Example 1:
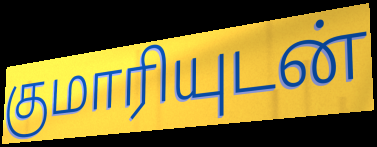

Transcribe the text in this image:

குமாரியுடன்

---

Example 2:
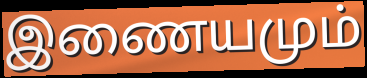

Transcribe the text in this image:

இணையமும்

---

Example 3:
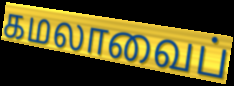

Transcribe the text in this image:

கமலாவைப்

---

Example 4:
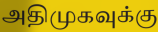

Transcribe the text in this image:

அதிமுகவுக்கு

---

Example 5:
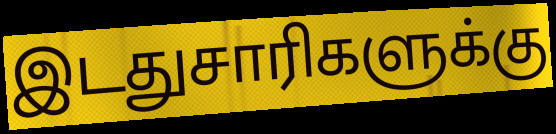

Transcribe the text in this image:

இடதுசாரிகளுக்கு